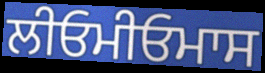
ਲੀਓਮੀਓਮਾਸ